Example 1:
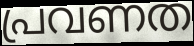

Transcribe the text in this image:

പ്രവണത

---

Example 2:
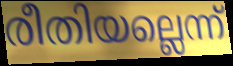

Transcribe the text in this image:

രീതിയല്ലെന്ന്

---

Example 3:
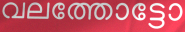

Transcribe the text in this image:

വലത്തോട്ടോ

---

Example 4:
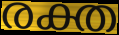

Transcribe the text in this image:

രക്ത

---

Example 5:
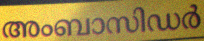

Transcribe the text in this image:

അംബാസിഡർ